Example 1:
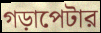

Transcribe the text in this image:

গড়াপেটার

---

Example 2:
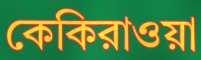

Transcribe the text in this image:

কেকিরাওয়া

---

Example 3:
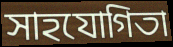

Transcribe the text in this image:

সাহযোগিতা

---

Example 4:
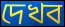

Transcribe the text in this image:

দেখব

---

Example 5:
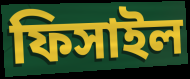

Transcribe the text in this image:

ফিসাইল